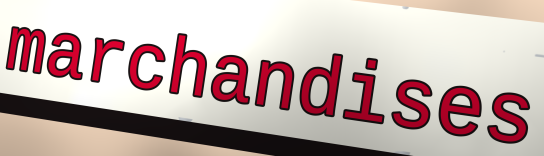
marchandises